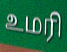
உமரி